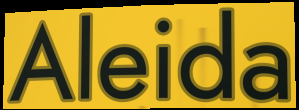
Aleida